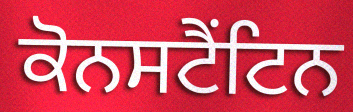
ਕੋਨਸਟੈਂਟਿਨ